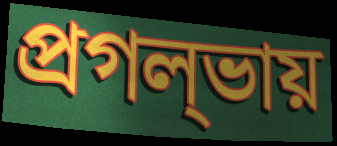
প্রগল্‌ভায়